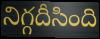
నిగ్గదీసింది